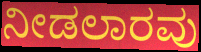
ನೀಡಲಾರವು